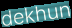
dekhun